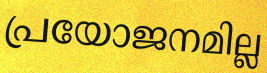
പ്രയോജനമില്ല